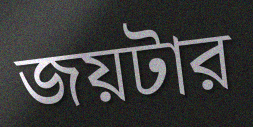
জয়টার